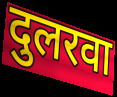
दुलरवा